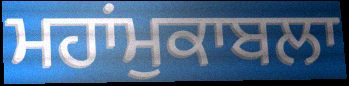
ਮਹਾਂਮੁਕਾਬਲਾ